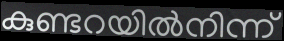
കുണ്ടറയിൽനിന്ന്